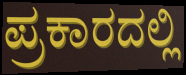
ಪ್ರಕಾರದಲ್ಲಿ